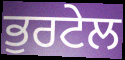
ਭੁਰਟੇਲ